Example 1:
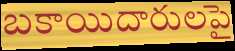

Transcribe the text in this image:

బకాయిదారులపై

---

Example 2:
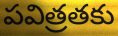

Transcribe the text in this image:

పవిత్రతకు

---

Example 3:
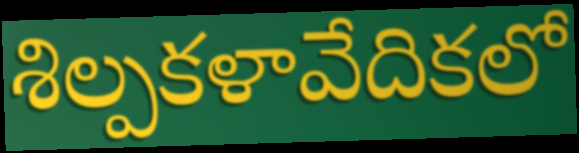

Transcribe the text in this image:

శిల్పకళావేదికలో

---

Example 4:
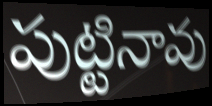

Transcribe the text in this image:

పుట్టినావు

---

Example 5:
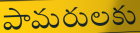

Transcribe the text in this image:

పామరులకు